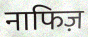
नाफिज़